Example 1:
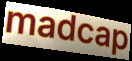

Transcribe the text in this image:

madcap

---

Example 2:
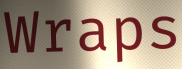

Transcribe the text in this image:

Wraps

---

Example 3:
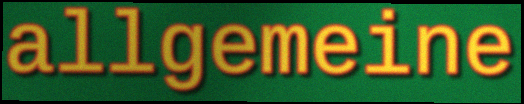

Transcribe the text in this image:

allgemeine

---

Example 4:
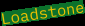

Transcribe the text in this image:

Loadstone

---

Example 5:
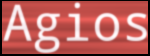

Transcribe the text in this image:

Agios